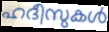
ഹദീസുകൾ